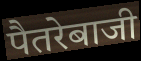
पैतरेबाजी